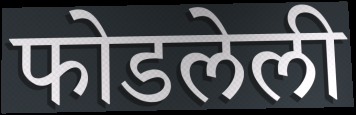
फोडलेली